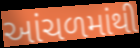
આંચળમાંથી